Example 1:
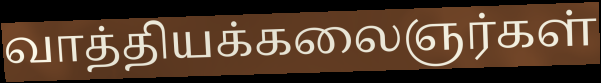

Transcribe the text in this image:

வாத்தியக்கலைஞர்கள்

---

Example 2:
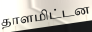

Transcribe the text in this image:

தாளமிட்டன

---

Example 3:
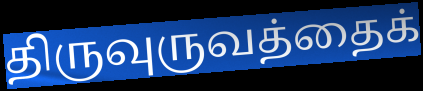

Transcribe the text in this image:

திருவுருவத்தைக்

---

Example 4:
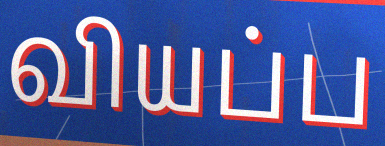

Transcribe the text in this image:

வியப்ப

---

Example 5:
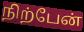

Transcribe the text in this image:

நிற்பேன்